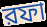
রফা